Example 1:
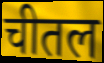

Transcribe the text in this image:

चीतल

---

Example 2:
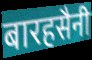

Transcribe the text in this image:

बारहसैनी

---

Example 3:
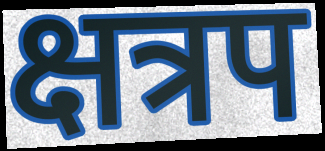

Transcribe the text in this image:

क्षत्रप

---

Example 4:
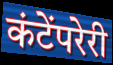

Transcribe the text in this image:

कंटेंपरेरी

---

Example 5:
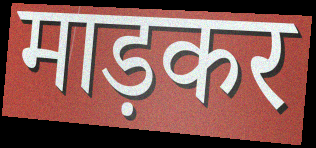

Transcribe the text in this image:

माड़कर